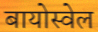
बायोस्वेल